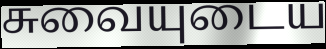
சுவையுடைய